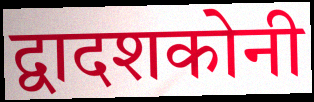
द्वादशकोनी